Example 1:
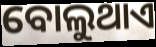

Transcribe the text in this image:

ବୋଲୁଥାଏ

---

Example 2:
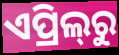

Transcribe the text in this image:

ଏପ୍ରିଲ୍‌ରୁ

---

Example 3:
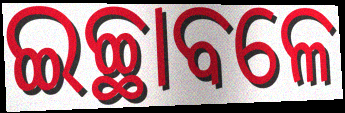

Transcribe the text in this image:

ଇଚ୍ଛାବଳେ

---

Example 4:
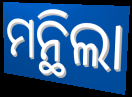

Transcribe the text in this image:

ମନ୍ଥିଲା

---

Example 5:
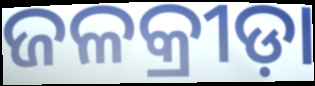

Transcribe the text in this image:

ଜଳକ୍ରୀଡ଼ା